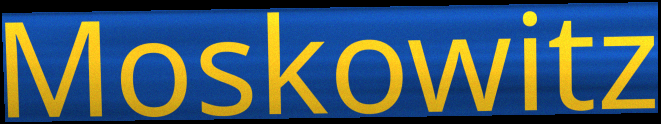
Moskowitz